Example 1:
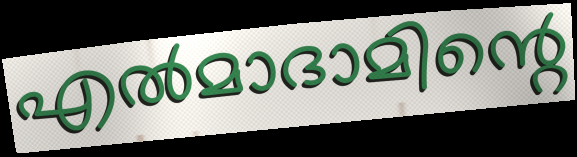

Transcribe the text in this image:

എൽമാദാമിന്റെ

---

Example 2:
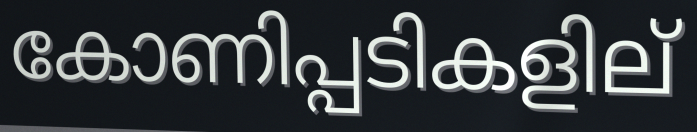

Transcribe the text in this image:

കോണിപ്പടികളില്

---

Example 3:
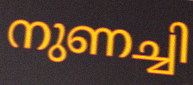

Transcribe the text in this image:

നുണച്ചി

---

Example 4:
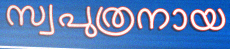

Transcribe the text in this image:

സ്വപുത്രനായ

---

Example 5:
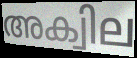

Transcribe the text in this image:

അക്വില